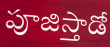
పూజిస్తాడో